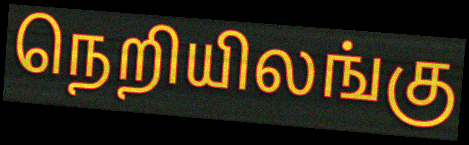
நெறியிலங்கு